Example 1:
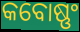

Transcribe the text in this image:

କବୋଷ୍ଣଂ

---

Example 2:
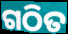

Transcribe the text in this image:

ଗଠିତ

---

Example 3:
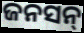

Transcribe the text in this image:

ଜନସନ୍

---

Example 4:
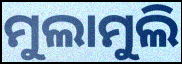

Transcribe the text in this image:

ମୁଲାମୁଲି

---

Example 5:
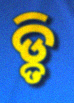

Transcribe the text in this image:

ଡ଼୍ଡି